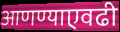
आणण्याएवढी